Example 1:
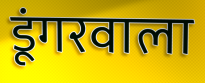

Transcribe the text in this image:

डूंगरवाला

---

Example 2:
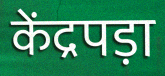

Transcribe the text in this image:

केंद्रपड़ा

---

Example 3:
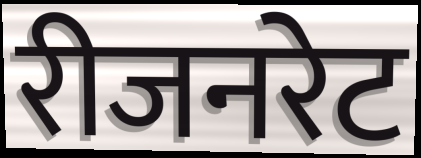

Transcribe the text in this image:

रीजनरेट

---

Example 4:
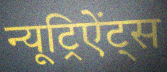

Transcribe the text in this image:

न्यूट्रिऐंट्स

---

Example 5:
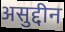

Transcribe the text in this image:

असुद्दीन